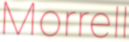
Morrell